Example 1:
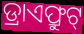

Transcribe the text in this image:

ଡ୍ରାଏଫ୍ରୁଟ୍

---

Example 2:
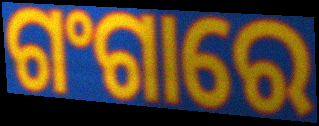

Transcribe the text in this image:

ଗଂଗାରେ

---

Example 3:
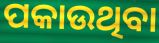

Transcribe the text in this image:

ପକାଉଥିବା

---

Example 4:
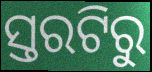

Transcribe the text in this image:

ସ୍ତରଟିରୁ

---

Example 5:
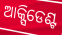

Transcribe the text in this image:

ଆକ୍ସିଡେଣ୍ଟ